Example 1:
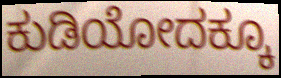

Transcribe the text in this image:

ಕುಡಿಯೋದಕ್ಕೂ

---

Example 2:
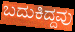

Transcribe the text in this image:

ಬದುಕಿದ್ದವು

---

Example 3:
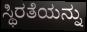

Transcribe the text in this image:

ಸ್ಥಿರತೆಯನ್ನು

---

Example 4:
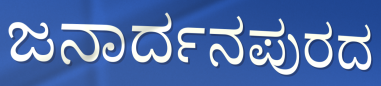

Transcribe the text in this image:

ಜನಾರ್ದನಪುರದ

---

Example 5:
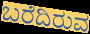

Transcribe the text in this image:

ಬರೆದಿರುವ